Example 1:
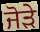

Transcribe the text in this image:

ਜੋਡ਼ੇ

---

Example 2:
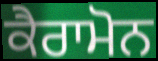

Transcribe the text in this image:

ਕੈਰਾਮੋਨ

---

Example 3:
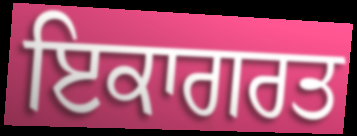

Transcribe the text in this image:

ਇਕਾਗਰਤ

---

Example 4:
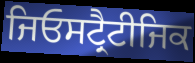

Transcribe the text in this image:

ਜਿਓਸਟ੍ਰੈਟੀਜਿਕ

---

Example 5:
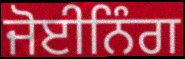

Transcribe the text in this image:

ਜੋਈਨਿੰਗ